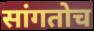
सांगतोच